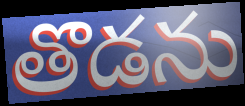
తొడను